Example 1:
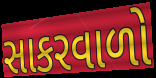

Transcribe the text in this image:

સાકરવાળો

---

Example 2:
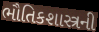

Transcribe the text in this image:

ભૌતિકશાસ્ત્રની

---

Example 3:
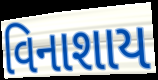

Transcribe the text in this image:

વિનાશાય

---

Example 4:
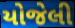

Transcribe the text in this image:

યોજેલી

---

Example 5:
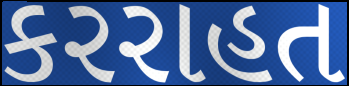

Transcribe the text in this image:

કરરાહત